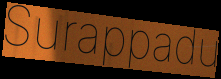
Surappadu